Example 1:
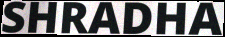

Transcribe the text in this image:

SHRADHA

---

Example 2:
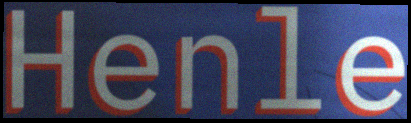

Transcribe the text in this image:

Henle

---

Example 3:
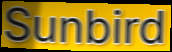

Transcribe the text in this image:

Sunbird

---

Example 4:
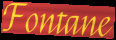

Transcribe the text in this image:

Fontane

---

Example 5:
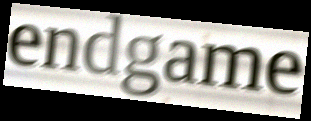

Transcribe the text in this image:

endgame